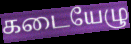
கடையேழு